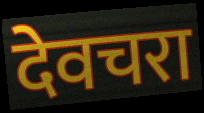
देवचरा